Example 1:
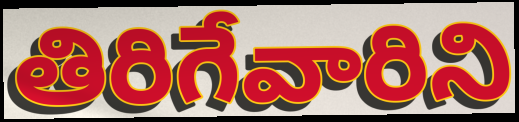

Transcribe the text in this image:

తిరిగేవారిని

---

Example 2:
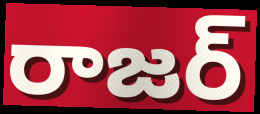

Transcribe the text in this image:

రాజర్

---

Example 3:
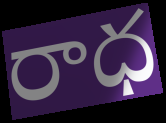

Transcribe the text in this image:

రాధ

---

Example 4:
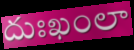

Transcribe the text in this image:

దుఃఖంలా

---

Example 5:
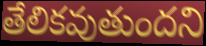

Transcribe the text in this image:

తేలికవుతుందని